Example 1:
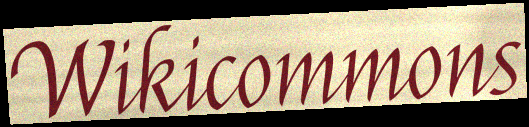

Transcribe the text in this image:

Wikicommons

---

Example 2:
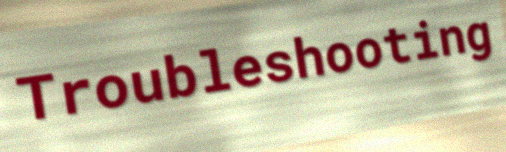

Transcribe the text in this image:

Troubleshooting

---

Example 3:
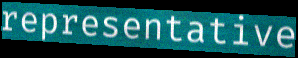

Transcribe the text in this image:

representative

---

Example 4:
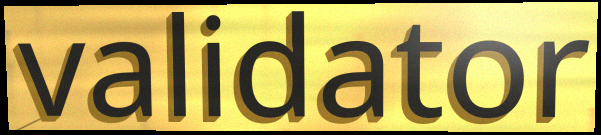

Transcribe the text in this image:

validator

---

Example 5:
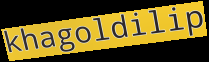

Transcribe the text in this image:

khagoldilip